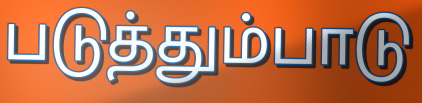
படுத்தும்பாடு